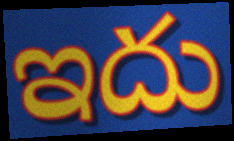
ఇదు